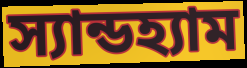
স্যান্ডহ্যাম